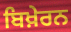
ਬਿਖ਼ੇਰਨ